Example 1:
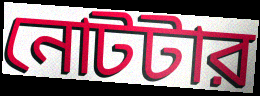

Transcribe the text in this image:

নোটটার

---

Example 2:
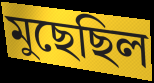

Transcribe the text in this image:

মুছেছিল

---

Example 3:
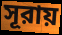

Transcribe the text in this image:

সূরায়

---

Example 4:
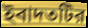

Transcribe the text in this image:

ইবাদতটির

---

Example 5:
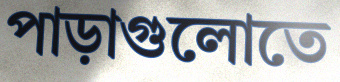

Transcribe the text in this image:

পাড়াগুলোতে